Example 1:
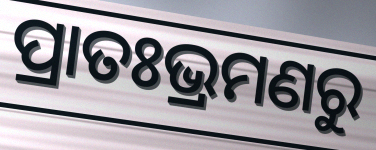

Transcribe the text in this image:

ପ୍ରାତଃଭ୍ରମଣରୁ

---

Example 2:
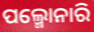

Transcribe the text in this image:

ପଲ୍ମୋନାରି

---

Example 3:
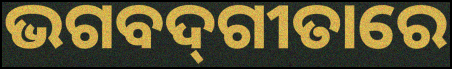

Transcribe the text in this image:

ଭଗବଦ୍‌ଗୀତାରେ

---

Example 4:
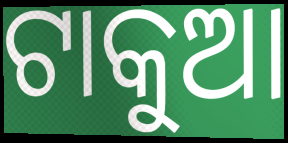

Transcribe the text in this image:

ଟାକୁଆ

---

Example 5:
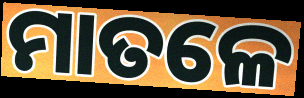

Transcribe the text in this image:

ମାତଳେ